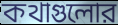
কথাগুলোর